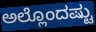
ಅಲ್ಲೊಂದಷ್ಟು